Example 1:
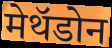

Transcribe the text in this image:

मेथॅडोन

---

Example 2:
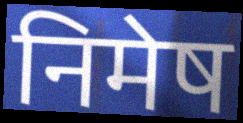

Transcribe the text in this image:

निमेष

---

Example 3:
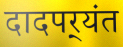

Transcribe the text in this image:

दादपर्यंत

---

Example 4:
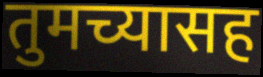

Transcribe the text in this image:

तुमच्यासह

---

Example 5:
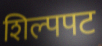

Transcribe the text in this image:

शिल्पपट